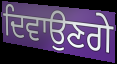
ਦਿਵਾਉਣਗੇ